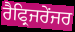
ਰੈਫ੍ਰਿਜਰੇਂਜਰ